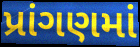
પ્રાંગણમાં